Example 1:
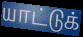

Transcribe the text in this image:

யாட்டுக்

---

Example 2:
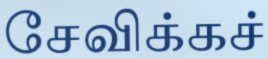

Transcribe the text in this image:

சேவிக்கச்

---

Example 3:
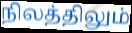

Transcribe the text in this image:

நிலத்திலும்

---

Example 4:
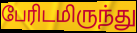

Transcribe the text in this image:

பேரிடமிருந்து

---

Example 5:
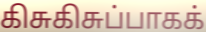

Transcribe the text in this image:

கிசுகிசுப்பாகக்